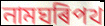
নামঘৰিপথ